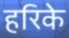
हरिके